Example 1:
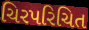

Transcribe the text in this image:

ચિરપરિચિત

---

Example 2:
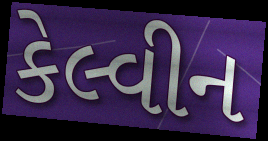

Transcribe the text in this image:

કેલ્વીન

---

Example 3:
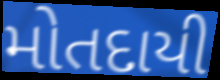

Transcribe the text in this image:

મોતદાયી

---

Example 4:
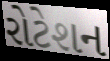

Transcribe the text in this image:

રોટેશન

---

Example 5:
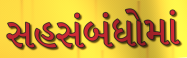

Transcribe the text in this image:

સહસંબંધોમાં